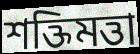
শক্তিমত্তা